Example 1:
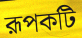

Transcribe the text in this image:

রূপকটি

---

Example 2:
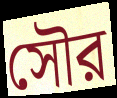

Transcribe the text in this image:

সৌর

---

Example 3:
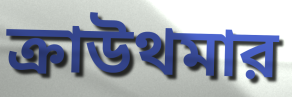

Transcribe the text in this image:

ক্রাউথমার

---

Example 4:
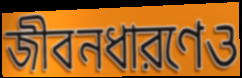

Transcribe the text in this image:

জীবনধারণেও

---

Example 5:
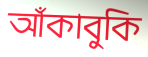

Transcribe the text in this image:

আঁকাবুকি